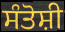
ਸੰਤੋਸ਼ੀ